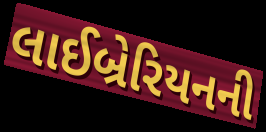
લાઈબ્રેરિયનની